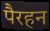
पैरहन